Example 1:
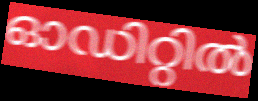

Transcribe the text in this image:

ഓഡിറ്റിൽ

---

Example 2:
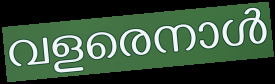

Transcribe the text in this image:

വളരെനാൾ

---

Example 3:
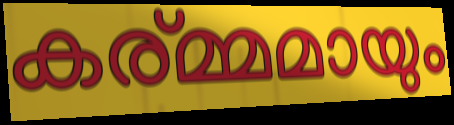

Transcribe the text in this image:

കര്മ്മമായും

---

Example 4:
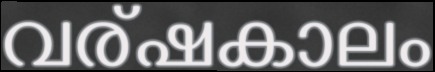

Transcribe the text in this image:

വര്ഷകാലം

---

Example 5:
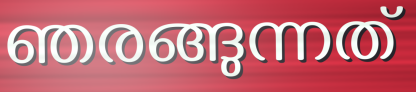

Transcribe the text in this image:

ഞരങ്ങുന്നത്